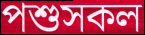
পশুসকল